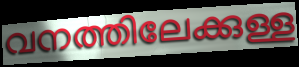
വനത്തിലേക്കുള്ള